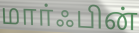
மார்ஃபின்